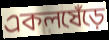
একলষেঁড়ে